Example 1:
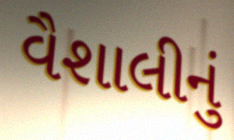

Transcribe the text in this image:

વૈશાલીનું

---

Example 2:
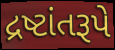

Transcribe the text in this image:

દ્રષ્ટાંતરૂપે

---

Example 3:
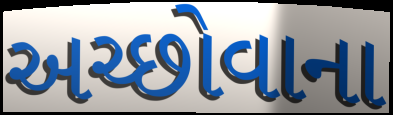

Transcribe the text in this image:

અચ્છોવાના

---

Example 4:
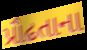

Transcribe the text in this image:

પ્રૌઢતાના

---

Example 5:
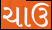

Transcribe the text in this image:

ચાઉ